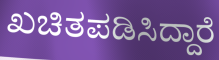
ಖಚಿತಪಡಿಸಿದ್ದಾರೆ